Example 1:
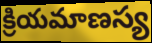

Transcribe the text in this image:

క్రియమాణస్య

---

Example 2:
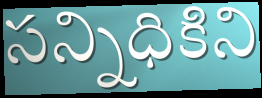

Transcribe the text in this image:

సన్నిధికిని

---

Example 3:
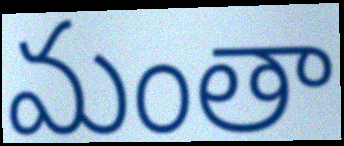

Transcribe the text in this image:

మంతా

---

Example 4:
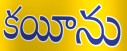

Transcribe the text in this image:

కయీను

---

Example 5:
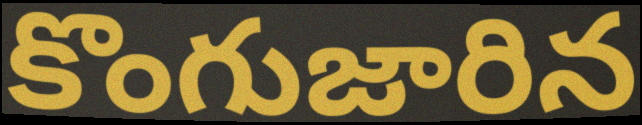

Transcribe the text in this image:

కొంగుజారిన